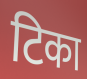
टिका